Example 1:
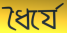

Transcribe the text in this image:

ধৈর্যে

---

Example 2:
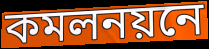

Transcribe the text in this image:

কমলনয়নে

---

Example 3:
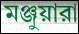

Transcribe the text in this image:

মঞ্জুয়ারা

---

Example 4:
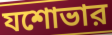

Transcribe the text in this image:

যশোভার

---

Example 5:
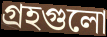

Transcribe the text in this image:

গ্রহগুলো